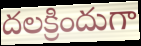
దలక్రిందుగా